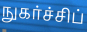
நுகர்ச்சிப்